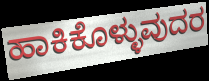
ಹಾಕಿಕೊಳ್ಳುವುದರ